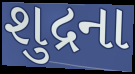
શુદ્રના